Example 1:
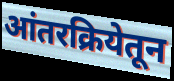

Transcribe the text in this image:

आंतरक्रियेतून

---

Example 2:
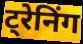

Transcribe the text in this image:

ट्रेनिंग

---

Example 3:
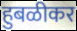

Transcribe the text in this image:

हुबळीकर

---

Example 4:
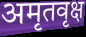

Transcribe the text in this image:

अमृतवृक्ष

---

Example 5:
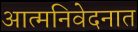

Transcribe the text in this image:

आत्मनिवेदनात